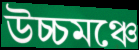
উচ্চমঞ্চে